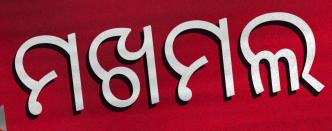
ମଖମଲ